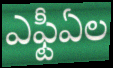
ఎఫ్టీఏల